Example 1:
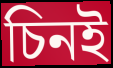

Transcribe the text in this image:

চিনই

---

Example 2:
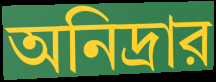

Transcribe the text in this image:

অনিদ্রার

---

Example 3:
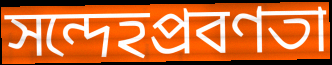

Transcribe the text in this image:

সন্দেহপ্রবণতা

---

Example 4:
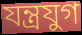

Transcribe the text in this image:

যন্ত্রযুগ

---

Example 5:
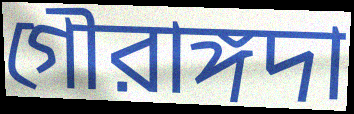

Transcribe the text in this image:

গৌরাঙ্গদা